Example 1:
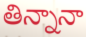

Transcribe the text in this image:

తిన్నానా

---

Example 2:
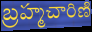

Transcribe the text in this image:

బ్రహ్మచారిణి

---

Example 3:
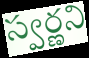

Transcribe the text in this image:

స్వర్ణని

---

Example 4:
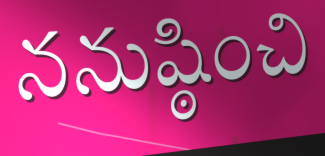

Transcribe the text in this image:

ననుష్ఠించి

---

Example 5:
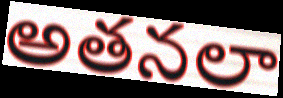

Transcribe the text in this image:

అతనలా